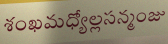
శంఖమధ్యోల్లసన్మంజు